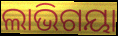
ଲାଭିଗୟା